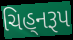
ચિહ્‌નરૂપ